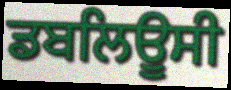
ਡਬਲਿਊਸੀ